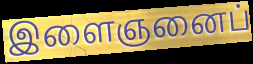
இளைஞனைப்